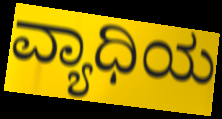
ವ್ಯಾಧಿಯ